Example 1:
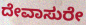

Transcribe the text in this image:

ದೇವಾಸುರೇ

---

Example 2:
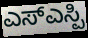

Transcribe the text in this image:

ಎಸ್ಎಸ್ಪಿ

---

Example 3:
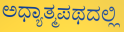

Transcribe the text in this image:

ಅಧ್ಯಾತ್ಮಪಥದಲ್ಲಿ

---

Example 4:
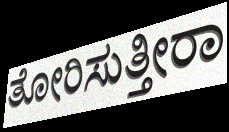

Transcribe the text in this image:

ತೋರಿಸುತ್ತೀರಾ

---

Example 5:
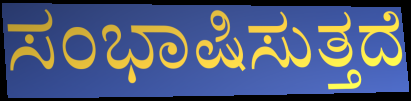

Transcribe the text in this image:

ಸಂಭಾಷಿಸುತ್ತದೆ